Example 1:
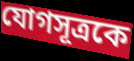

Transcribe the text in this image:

যোগসূত্রকে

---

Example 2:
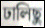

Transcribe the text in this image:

ঢালিছু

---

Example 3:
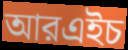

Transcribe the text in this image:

আরএইচ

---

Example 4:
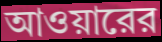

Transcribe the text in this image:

আওয়ারের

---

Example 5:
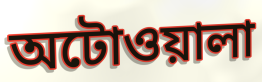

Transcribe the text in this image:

অটোওয়ালা